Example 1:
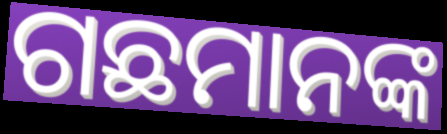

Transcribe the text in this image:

ଗଛମାନଙ୍କ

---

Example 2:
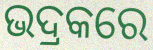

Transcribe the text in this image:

ଭଦ୍ରକରେ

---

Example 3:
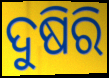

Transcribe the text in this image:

ଦୁଷିରି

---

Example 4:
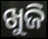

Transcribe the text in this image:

ଖୁଜି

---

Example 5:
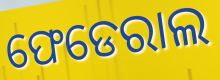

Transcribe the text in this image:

ଫେଡେରାଲ